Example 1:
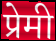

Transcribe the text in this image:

प्रेमी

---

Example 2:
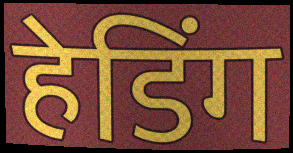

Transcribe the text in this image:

हेडिंग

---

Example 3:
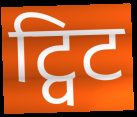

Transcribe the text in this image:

ट्विट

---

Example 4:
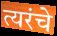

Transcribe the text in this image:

त्यरंचे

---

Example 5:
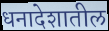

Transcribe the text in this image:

धनादेशातील